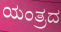
ಯಂತ್ರದ